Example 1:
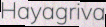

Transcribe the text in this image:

Hayagriva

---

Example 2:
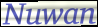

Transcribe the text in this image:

Nuwan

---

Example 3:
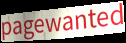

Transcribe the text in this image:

pagewanted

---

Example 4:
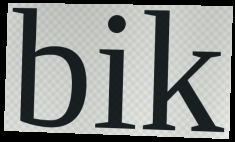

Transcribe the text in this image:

bik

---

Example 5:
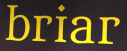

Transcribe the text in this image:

briar